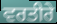
ਵਰਤੀਰੇ